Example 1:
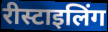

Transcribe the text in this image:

रीस्टाइलिंग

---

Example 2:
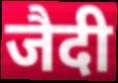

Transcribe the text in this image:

जैदी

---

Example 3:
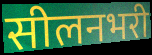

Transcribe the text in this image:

सीलनभरी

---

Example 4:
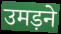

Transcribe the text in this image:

उमड़ने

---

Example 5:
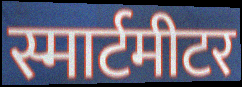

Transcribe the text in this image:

स्मार्टमीटर